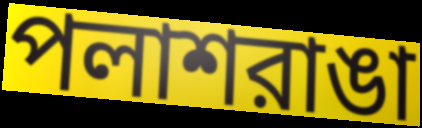
পলাশরাঙা